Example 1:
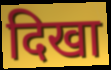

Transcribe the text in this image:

दिखा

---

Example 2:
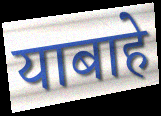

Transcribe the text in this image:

याबाहे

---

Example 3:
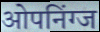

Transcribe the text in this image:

ओपनिंग्ज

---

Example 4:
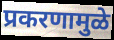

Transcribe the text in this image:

प्रकरणामुळे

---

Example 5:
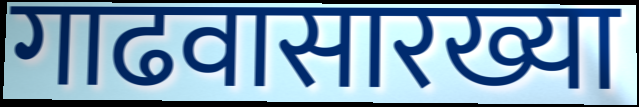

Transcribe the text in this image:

गाढवासारख्या